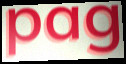
pag